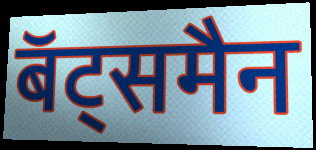
बॅट्समैन